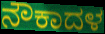
ನೌಕಾದಳ